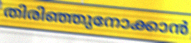
തിരിഞ്ഞുനോക്കാൻ